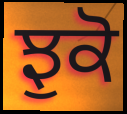
ਝੁਕੋ